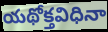
యథోక్తవిధినా